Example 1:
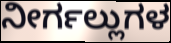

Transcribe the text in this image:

ನೀರ್ಗಲ್ಲುಗಳ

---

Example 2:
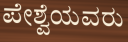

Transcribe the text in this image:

ಪೇಶ್ವೆಯವರು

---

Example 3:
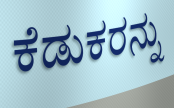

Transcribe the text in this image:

ಕೆಡುಕರನ್ನು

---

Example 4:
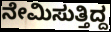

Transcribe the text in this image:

ನೇಮಿಸುತ್ತಿದ್ದ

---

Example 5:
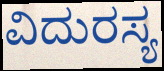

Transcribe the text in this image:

ವಿದುರಸ್ಯ